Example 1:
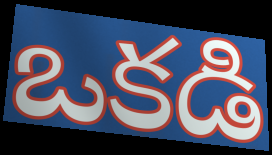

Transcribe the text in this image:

ఒకడి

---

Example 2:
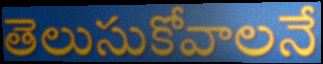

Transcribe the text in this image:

తెలుసుకోవాలనే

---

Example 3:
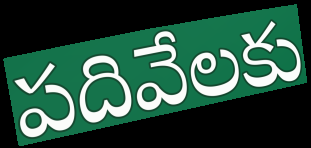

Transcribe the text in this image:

పదివేలకు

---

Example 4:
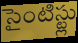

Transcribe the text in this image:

సైంటిస్ట్లు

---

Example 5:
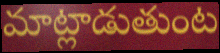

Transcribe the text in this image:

మాట్లాడుతుంట